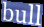
bull